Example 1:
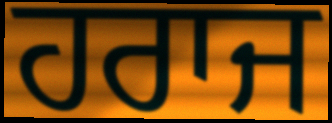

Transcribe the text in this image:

ਹਰਾਜ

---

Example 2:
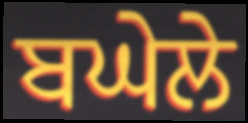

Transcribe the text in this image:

ਬਘੇਲੇ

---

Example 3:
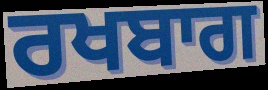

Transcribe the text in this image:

ਰਖਬਾਗ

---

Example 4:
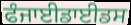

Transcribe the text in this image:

ਫੰਜਾਈਡਾਈਡਸ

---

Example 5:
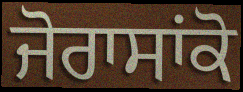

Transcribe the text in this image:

ਜੋਰਾਸਾਂਕੋ